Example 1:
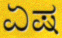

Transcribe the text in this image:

ಏಷ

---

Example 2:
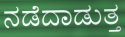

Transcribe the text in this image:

ನಡೆದಾಡುತ್ತ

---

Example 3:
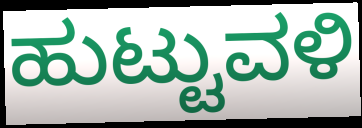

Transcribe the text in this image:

ಹುಟ್ಟುವಳಿ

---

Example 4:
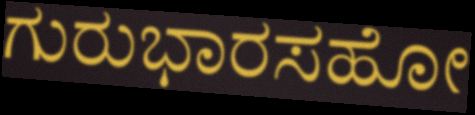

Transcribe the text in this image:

ಗುರುಭಾರಸಹೋ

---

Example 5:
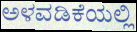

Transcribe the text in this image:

ಅಳವಡಿಕೆಯಲ್ಲಿ